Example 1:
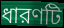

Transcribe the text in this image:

ধারণটি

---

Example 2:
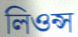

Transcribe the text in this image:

লিওন্স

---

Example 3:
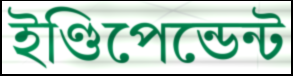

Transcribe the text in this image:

ইণ্ডিপেন্ডেন্ট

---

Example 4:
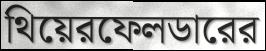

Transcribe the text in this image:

থিয়েরফেলডারের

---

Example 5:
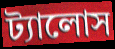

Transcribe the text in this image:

ট্যালোস